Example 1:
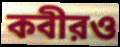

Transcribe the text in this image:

কবীরও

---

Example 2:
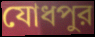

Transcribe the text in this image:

যোধপুর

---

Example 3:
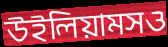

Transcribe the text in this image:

উইলিয়ামসও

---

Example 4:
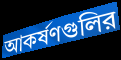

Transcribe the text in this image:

আকর্ষণগুলির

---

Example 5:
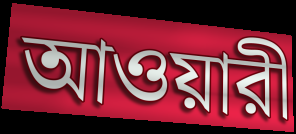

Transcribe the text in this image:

আওয়ারী